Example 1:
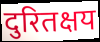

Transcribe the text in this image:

दुरितक्षय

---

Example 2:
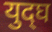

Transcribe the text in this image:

युद्घ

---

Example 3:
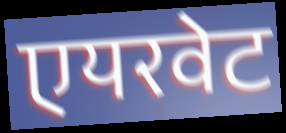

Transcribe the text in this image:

एयरवेट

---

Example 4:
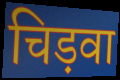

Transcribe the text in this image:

चिड़वा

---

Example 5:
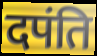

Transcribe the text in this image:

दपंति